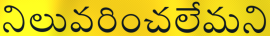
నిలువరించలేమని